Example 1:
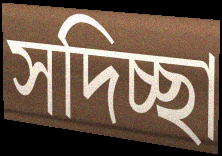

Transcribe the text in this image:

সদিচ্ছা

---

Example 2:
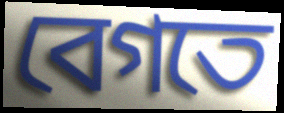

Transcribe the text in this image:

বেগতে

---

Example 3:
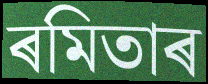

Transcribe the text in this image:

ৰমিতাৰ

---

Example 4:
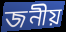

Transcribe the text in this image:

জনীয়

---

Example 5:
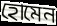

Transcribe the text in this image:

হোমেন